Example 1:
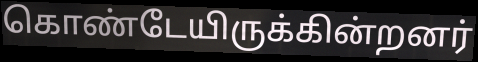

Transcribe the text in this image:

கொண்டேயிருக்கின்றனர்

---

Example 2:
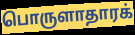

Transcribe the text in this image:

பொருளாதாரக்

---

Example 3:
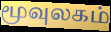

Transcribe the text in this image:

மூவுலகம்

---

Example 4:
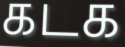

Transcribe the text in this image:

கடக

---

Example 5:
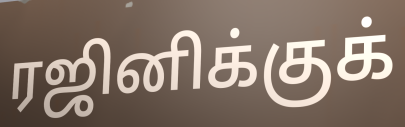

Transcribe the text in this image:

ரஜினிக்குக்